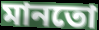
মানতো